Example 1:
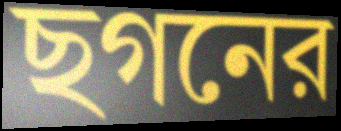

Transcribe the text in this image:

ছগনের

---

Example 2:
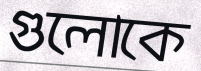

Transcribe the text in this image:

গুলোকে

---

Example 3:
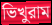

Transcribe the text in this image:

ভিখুরাম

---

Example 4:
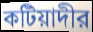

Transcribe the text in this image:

কটিয়াদীর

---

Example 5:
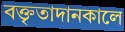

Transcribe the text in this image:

বক্তৃতাদানকালে